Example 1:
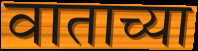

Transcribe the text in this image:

वाताच्या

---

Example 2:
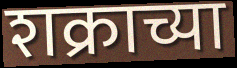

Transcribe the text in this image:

शक्राच्या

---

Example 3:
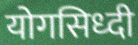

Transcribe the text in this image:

योगसिध्दी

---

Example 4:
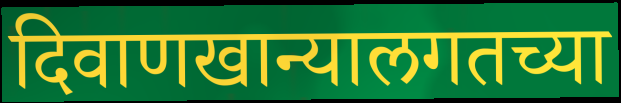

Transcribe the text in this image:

दिवाणखान्यालगतच्या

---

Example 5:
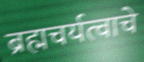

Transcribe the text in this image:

ब्रह्मचर्यत्वाचे